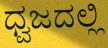
ಧ್ವಜದಲ್ಲಿ